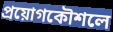
প্রয়োগকৌশলে